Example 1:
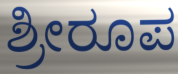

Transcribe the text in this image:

ಶ್ರೀರೂಪ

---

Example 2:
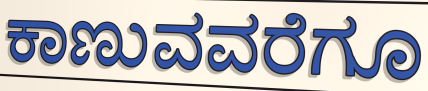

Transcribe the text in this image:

ಕಾಣುವವರೆಗೂ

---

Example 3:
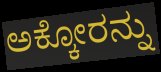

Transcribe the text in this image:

ಅಕ್ಕೋರನ್ನು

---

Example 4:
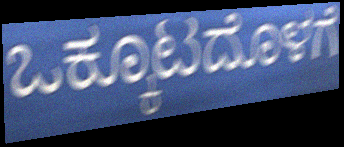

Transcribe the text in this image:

ಒಕ್ಕೂಟದೊಳಗೆ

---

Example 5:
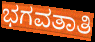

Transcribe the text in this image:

ಭಗವತಾತಿ